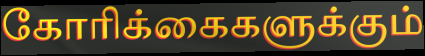
கோரிக்கைகளுக்கும்